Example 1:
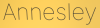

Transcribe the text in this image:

Annesley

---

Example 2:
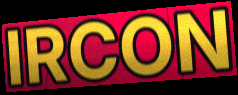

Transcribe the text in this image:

IRCON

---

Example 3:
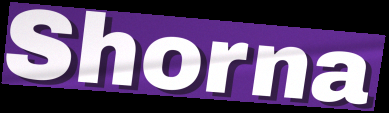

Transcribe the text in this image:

Shorna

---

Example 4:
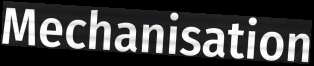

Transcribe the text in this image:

Mechanisation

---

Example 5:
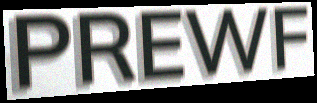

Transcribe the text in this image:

PREWF